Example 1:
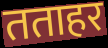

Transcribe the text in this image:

तताहर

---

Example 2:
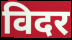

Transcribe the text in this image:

विदर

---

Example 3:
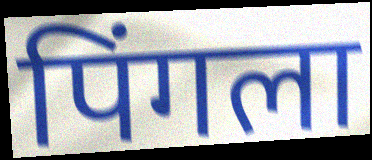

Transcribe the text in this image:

पिंगला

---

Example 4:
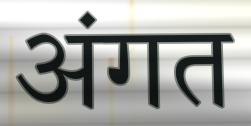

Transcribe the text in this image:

अंगत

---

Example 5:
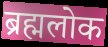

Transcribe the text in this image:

ब्रह्मलोक